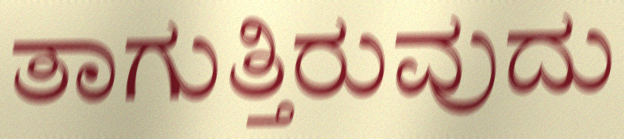
ತಾಗುತ್ತಿರುವುದು